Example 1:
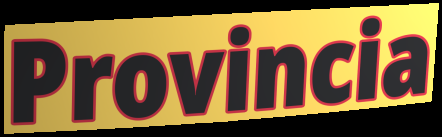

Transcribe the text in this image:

Provincia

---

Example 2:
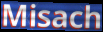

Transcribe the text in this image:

Misach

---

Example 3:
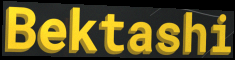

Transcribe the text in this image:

Bektashi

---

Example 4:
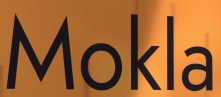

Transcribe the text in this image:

Mokla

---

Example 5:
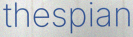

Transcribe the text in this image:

thespian